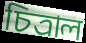
চিত্রাল